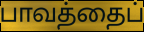
பாவத்தைப்